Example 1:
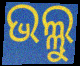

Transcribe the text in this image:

ଭଲ୍ଲୁ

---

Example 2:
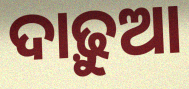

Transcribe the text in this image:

ଦାଢ଼ୁଆ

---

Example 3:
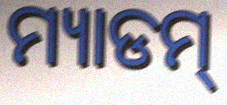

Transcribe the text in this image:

ମ୍ୟାଡମ୍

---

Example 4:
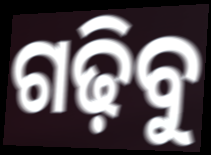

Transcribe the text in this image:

ଗଢ଼ିବୁ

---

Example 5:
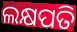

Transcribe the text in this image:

ଲକ୍ଷପତି